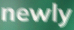
newly